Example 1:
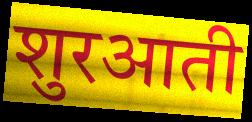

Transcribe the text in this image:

शुरआती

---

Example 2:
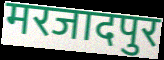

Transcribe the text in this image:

मरजादपुर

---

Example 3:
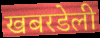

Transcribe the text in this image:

खबरडेली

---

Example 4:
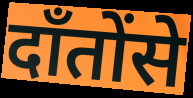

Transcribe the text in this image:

दाँतोंसे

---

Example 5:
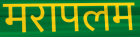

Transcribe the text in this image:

मरापलम